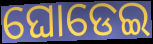
ଘୋଡେଇ